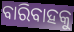
ବାରିବାହକୁ